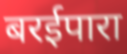
बरईपारा